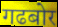
गढबोर